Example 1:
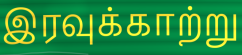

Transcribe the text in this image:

இரவுக்காற்று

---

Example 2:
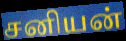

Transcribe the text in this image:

சனியன்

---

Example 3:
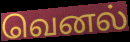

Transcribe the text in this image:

வெனல்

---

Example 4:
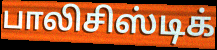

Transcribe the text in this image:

பாலிசிஸ்டிக்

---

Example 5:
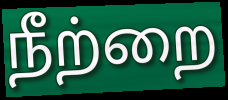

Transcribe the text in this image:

நீற்றை